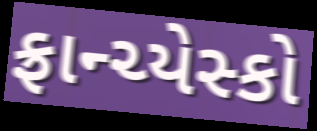
ફ્રાન્ચ્યેસ્કો